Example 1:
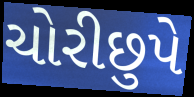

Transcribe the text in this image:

ચોરીછુપે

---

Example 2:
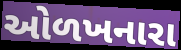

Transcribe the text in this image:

ઓળખનારા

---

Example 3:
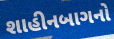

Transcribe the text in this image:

શાહીનબાગનો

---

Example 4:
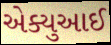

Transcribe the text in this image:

એક્યુઆઈ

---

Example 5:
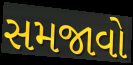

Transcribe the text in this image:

સમજાવો